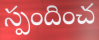
స్పందించ